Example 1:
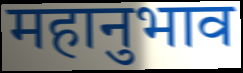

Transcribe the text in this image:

महानुभाव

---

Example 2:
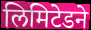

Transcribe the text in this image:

लिमिटेडने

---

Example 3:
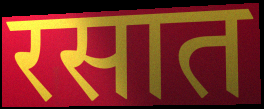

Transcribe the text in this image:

रसात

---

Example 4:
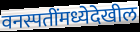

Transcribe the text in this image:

वनस्पतींमध्येदेखील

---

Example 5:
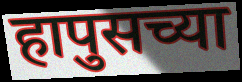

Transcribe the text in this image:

हापुसच्या